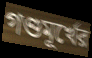
গণ্ডমূর্খের